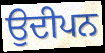
ਉਦੀਪਨ